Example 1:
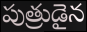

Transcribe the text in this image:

పుత్రుడైన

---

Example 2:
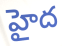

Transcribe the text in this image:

హైద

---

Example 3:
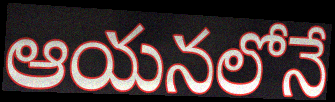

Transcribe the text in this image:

ఆయనలోనే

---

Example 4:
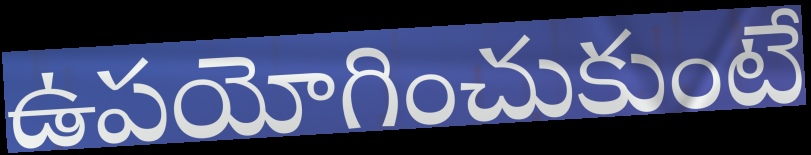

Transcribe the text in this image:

ఉపయోగించుకుంటే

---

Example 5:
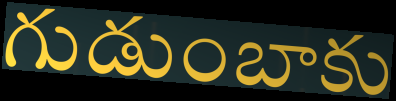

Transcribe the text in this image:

గుడుంబాకు